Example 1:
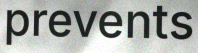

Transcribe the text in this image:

prevents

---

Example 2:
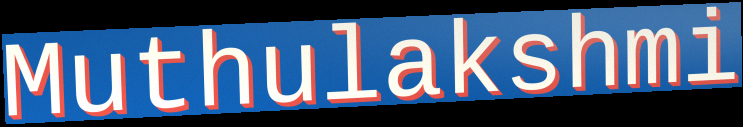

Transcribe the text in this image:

Muthulakshmi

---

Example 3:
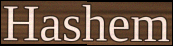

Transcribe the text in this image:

Hashem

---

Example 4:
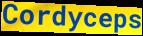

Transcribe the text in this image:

Cordyceps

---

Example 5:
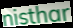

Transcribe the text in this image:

nisthar